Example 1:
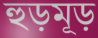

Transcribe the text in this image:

হুড়মূড়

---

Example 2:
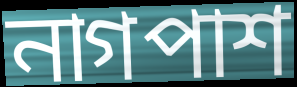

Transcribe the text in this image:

নাগপাশ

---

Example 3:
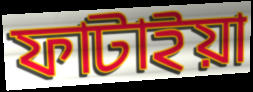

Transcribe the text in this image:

ফাটাইয়া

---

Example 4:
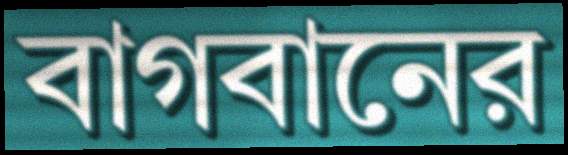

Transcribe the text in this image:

বাগবানের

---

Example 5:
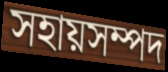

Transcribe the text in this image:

সহায়সম্পদ